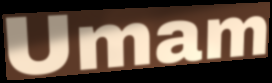
Umam